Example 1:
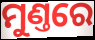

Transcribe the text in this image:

ମୁଣ୍ତରେ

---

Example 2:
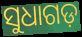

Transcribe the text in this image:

ସୁଧାଗଡ଼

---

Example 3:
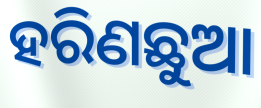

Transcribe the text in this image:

ହରିଣଛୁଆ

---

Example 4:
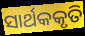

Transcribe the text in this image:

ସାର୍ଥକକୃତି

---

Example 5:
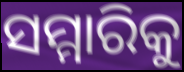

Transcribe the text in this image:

ସମ୍ମାରିକୁ